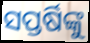
ସପ୍ତର୍ଷିଙ୍କୁ